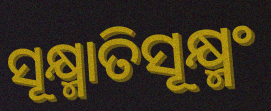
ସୂକ୍ଷ୍ମାତିସୂକ୍ଷ୍ମଂ